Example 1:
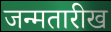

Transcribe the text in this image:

जन्मतारीख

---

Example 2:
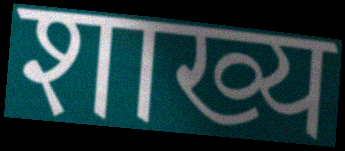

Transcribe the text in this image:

शाख्य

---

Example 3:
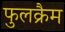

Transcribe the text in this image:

फुलक्रैम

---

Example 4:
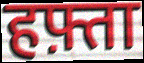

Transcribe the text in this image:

हफ़्ता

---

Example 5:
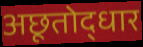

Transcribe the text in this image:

अछूतोद्धार